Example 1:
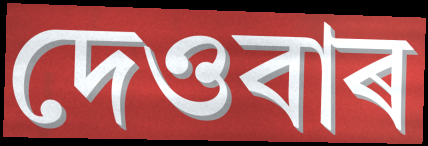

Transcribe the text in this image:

দেওবাৰ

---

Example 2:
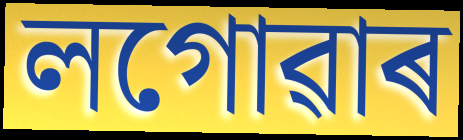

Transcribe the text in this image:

লগোৱাৰ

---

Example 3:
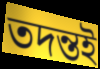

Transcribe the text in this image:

তদন্তই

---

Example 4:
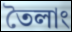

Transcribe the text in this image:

তৈলাং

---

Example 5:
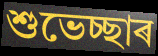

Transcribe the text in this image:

শুভেচ্ছাৰ